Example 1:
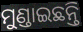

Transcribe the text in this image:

ମୁଣ୍ଡାଇଛନ୍ତି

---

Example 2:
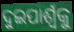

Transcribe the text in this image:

ଦୁଇପାର୍ଶ୍ବକୁ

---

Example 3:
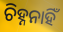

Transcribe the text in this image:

ଚିହ୍ନନାହିଁ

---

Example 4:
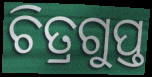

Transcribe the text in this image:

ଚିତ୍ରଗୁପ୍ତ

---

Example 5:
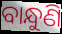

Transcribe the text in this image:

ବାନ୍ଧୁଣି